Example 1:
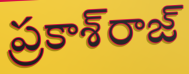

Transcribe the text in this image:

ప్రకాశ్‌రాజ్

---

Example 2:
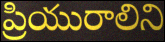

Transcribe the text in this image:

ప్రియురాలిని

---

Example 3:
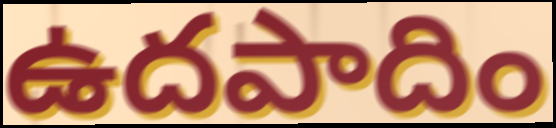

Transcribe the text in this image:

ఉదపాదిం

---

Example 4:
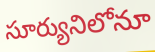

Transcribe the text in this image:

సూర్యునిలోనూ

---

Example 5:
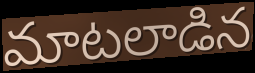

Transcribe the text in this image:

మాటలాడిన